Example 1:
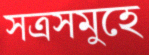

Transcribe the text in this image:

সত্ৰসমুহে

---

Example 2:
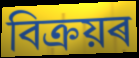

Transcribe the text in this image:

বিক্ৰয়ৰ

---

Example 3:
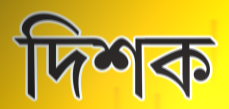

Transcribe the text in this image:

দিশক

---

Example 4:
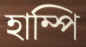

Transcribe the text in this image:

হাম্পি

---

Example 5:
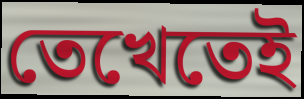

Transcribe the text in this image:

তেখেতেই